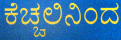
ಕೆಚ್ಚಲಿನಿಂದ